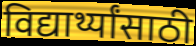
विद्यार्थ्यांसाठी